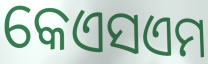
କେଏସଏମ